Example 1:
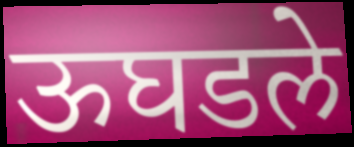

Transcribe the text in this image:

ऊघडले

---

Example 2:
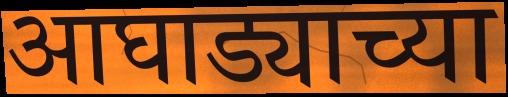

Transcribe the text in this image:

आघाड्याच्या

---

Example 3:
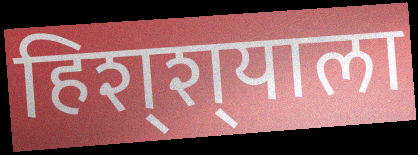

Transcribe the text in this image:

हिश्श्याला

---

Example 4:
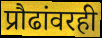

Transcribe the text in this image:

प्रौढांवरही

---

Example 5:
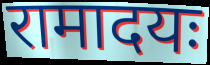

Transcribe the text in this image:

रामादयः